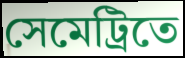
সেমেট্রিতে